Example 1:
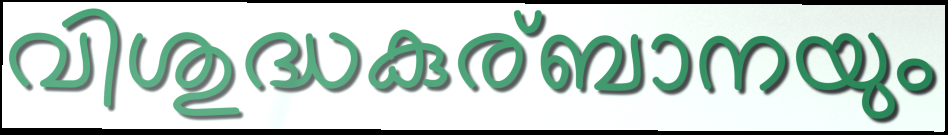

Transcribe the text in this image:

വിശുദ്ധകുര്ബാനയും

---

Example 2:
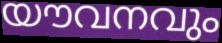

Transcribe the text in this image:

യൗവനവും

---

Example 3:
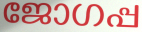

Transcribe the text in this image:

ജോഗപ്പ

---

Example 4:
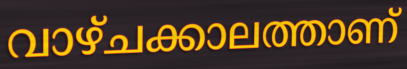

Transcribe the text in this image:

വാഴ്ചക്കാലത്താണ്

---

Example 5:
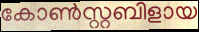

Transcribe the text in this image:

കോൺസ്റ്റബിളായ